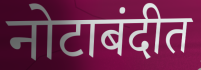
नोटाबंदीत